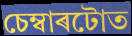
চেম্বাৰটোত